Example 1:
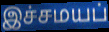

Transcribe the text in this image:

இச்சமயப்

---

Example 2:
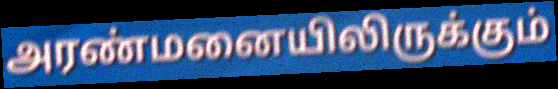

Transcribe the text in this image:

அரண்மனையிலிருக்கும்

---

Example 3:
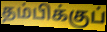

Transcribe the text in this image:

தம்பிக்குப்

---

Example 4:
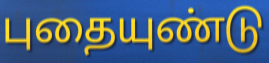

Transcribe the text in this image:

புதையுண்டு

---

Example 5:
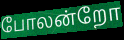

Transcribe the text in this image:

போலன்றோ